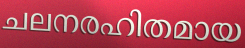
ചലനരഹിതമായ